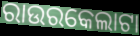
ରାଉରକେଲାଟା